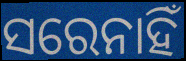
ସରେନାହିଁ